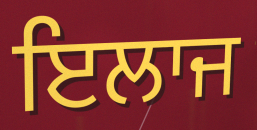
ਇਲਾਜ